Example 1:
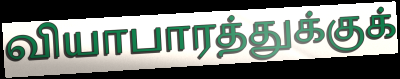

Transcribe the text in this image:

வியாபாரத்துக்குக்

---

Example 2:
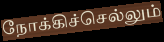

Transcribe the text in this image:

நோக்கிச்செல்லும்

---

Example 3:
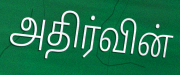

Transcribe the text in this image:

அதிர்வின்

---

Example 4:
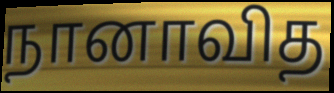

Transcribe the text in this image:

நானாவித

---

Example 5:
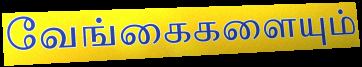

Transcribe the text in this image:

வேங்கைகளையும்